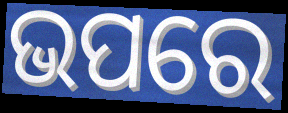
ଭପରେ